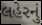
લહેરનું